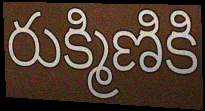
రుక్మిణికి